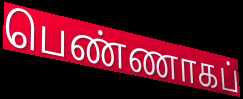
பெண்ணாகப்